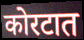
कोरटात